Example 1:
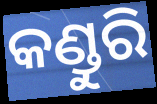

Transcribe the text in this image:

କଣ୍ଡୁରି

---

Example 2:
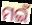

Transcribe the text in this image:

ମଇଁ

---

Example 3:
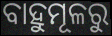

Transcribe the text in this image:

ବାହୁମୂଳରୁ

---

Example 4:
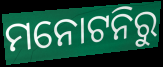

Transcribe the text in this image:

ମନୋଟନିରୁ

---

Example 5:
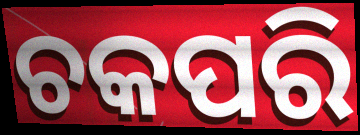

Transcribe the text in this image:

ଚକପରି